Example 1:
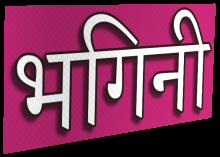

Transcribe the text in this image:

भगिनी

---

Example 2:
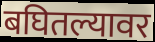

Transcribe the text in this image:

बघितल्यावर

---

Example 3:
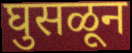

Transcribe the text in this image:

घुसळून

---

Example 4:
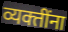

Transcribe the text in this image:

व्यक्‍तींना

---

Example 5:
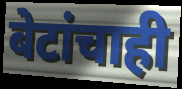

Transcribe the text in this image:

बेटांचाही